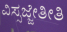
ವಿಸ್ಸಜ್ಜೇತೀತಿ